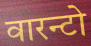
वारन्टो